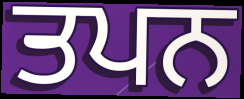
ਤਪਨ